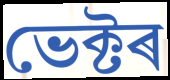
ভেক্টৰ